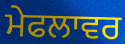
ਮੇਫਲਾਵਰ